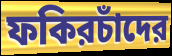
ফকিরচাঁদের